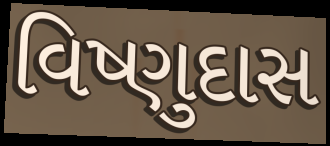
વિષ્ણુદાસ